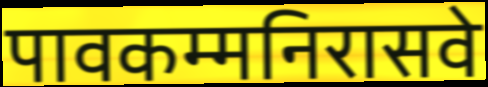
पावकम्मनिरासवे